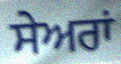
ਸੇਅਰਾਂ